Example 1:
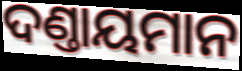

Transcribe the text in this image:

ଦଣ୍ତାୟମାନ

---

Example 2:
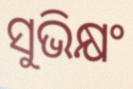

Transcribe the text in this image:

ସୁଭିକ୍ଷଂ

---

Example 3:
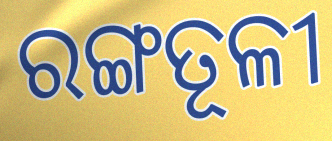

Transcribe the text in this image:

ରଙ୍ଗତୂଳୀ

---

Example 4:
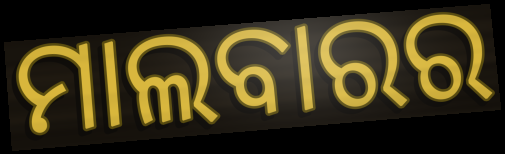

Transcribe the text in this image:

ମାଲବାରର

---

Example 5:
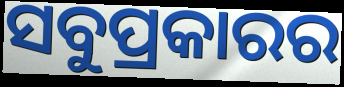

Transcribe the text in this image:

ସବୁପ୍ରକାରର